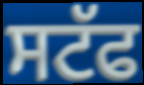
ਸਟੱਫ